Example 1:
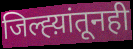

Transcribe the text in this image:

जिल्ह्य़ांतूनही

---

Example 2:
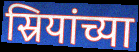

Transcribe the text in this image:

स्रियांच्या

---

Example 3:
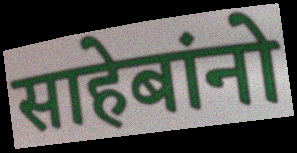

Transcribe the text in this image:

साहेबांनो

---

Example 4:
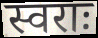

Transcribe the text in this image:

स्वराः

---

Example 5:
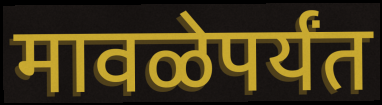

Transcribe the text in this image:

मावळेपर्यंत